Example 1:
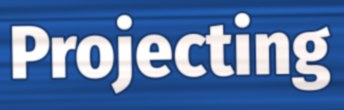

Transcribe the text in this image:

Projecting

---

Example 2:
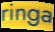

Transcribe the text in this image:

ringa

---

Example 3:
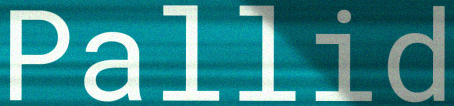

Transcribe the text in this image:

Pallid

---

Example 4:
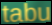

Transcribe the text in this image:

tabu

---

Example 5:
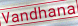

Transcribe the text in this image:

Vandhana